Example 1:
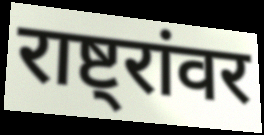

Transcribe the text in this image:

राष्ट्रांवर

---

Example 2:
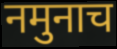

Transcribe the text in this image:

नमुनाच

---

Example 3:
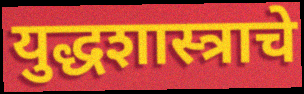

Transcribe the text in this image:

युद्धशास्त्राचे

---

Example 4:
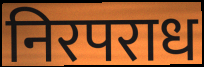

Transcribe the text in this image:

निरपराध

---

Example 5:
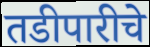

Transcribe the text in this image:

तडीपारीचे